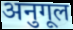
अनुगूल